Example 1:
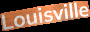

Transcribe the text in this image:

Louisville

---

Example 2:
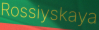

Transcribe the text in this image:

Rossiyskaya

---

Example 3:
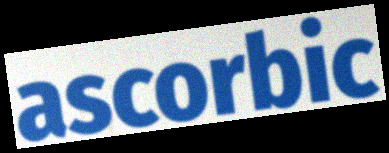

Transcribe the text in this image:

ascorbic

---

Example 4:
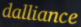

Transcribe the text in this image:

dalliance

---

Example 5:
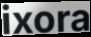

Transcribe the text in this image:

ixora